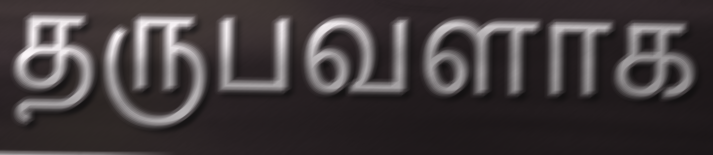
தருபவளாக